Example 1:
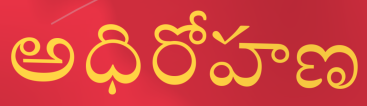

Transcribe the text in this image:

అధిరోహణ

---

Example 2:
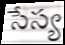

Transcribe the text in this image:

సేస్య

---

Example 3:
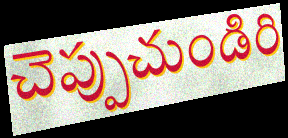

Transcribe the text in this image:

చెప్పుచుండిరి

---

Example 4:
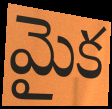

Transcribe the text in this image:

మైక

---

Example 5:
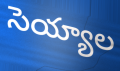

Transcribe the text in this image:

సెయ్యాల